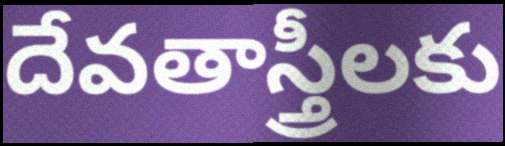
దేవతాస్త్రీలకు